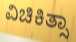
ವಿಚಿಕಿತ್ಸಾ